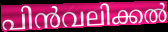
പിൻവലിക്കൽ